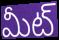
మీట్